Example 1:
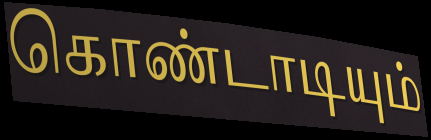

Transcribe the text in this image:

கொண்டாடியும்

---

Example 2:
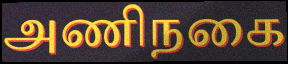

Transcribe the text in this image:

அணிநகை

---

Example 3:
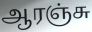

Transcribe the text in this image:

ஆரஞ்சு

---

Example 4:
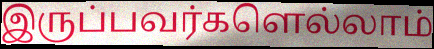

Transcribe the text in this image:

இருப்பவர்களெல்லாம்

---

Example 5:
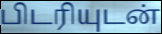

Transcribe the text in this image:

பிடரியுடன்